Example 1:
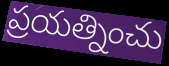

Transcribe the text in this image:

ప్రయత్నించు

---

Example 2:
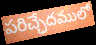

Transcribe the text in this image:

పరిచ్ఛేదములో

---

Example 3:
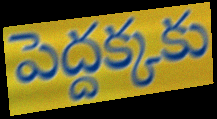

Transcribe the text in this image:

పెద్దక్కకు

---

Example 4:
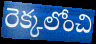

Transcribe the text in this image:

రెక్కలోంచి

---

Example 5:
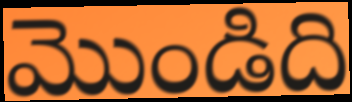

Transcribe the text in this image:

మొండిది